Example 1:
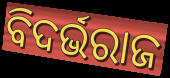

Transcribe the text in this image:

ବିଦର୍ଭରାଜ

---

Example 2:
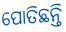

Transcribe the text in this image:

ପୋତିଛନ୍ତି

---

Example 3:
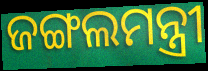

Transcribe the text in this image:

ଜଙ୍ଗଲମନ୍ତ୍ରୀ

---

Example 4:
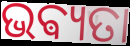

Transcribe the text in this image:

ଭଵ୍ୟତା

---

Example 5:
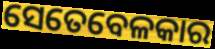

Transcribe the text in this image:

ସେତେବେଳକାର